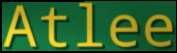
Atlee